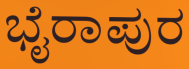
ಭೈರಾಪುರ